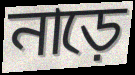
নাড়ে